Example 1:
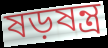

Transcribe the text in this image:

ষড়ষন্ত্র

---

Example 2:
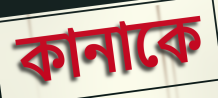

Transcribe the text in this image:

কানাকে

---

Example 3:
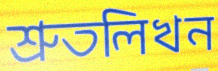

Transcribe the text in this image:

শ্রুতলিখন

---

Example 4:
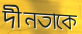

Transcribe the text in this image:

দীনতাকে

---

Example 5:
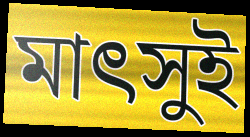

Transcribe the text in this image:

মাৎসুই